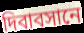
দিবাবসানে